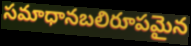
సమాధానబలిరూపమైన